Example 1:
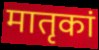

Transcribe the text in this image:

मातृकां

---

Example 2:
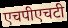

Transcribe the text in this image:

एचपीएचटी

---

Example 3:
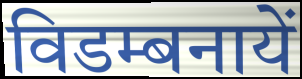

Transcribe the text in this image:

विडम्बनायें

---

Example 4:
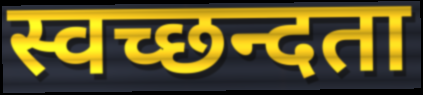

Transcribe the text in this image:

स्वच्छन्दता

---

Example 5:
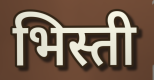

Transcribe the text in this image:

भिस्ती